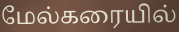
மேல்கரையில்